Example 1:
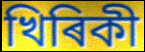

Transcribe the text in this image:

খিৰিকী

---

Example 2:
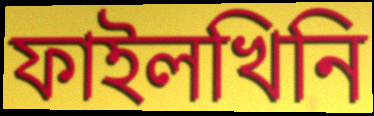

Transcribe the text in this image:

ফাইলখিনি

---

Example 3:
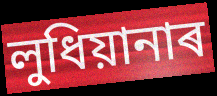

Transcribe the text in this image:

লুধিয়ানাৰ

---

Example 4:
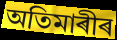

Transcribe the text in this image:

অতিমাৰীৰ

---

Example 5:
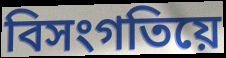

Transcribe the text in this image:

বিসংগতিয়ে